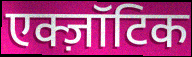
एक्ज़ॉटिक